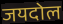
जयदोल